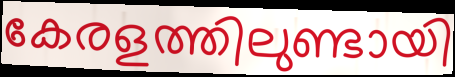
കേരളത്തിലുണ്ടായി